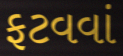
ફટવવાં